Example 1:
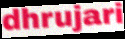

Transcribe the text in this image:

dhrujari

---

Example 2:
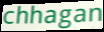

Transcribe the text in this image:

chhagan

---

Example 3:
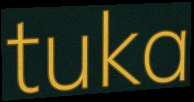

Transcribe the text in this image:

tuka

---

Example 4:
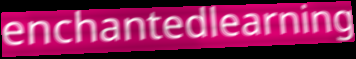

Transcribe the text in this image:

enchantedlearning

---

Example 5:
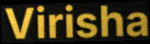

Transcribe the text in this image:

Virisha